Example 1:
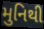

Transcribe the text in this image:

મુનિથી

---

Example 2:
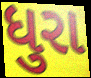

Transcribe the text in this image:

ધુરા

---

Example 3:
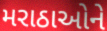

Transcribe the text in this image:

મરાઠાઓને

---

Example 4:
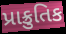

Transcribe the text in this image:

પ્રાક્રુતિક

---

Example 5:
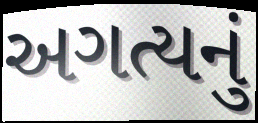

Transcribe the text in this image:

અગત્યનું